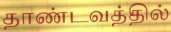
தாண்டவத்தில்